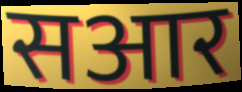
सआर